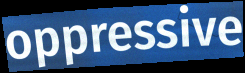
oppressive